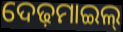
ଦେଢ଼ମାଇଲ୍